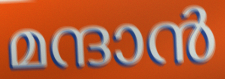
മന്ദാൻ